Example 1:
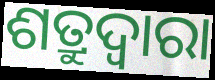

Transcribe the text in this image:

ଶତ୍ରୁଦ୍ଵାରା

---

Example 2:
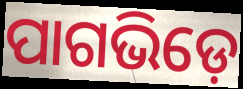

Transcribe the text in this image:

ପାଗଭିଡ଼େ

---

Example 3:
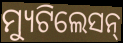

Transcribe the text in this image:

ମ୍ୟୁଟିଲେସନ୍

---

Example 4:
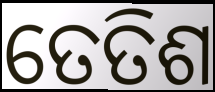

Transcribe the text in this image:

ତେତିଶ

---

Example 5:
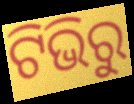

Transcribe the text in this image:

ଟିଭିରୁ